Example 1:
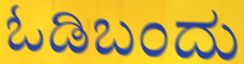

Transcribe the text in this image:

ಓಡಿಬಂದು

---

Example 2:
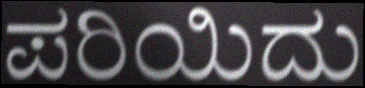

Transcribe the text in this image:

ಪರಿಯಿದು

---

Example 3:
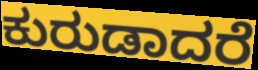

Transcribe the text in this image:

ಕುರುಡಾದರೆ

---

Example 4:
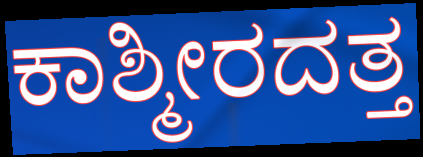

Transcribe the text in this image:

ಕಾಶ್ಮೀರದತ್ತ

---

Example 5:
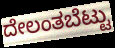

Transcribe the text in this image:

ದೇಲಂತಬೆಟ್ಟು